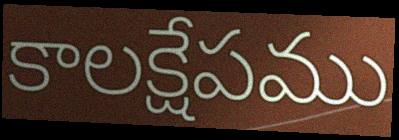
కాలక్షేపము